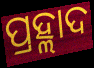
ପ୍ରହ୍ଲାଦ